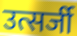
उत्सर्जी